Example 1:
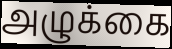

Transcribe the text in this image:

அழுக்கை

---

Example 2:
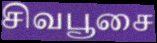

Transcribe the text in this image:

சிவபூசை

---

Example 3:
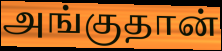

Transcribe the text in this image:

அங்குதான்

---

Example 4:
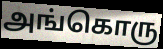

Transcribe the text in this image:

அங்கொரு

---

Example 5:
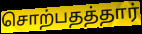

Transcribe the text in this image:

சொற்பதத்தார்